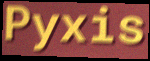
Pyxis